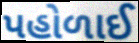
પહોળાઈ